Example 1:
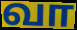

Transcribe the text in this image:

வா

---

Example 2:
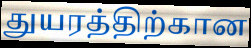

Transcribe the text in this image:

துயரத்திற்கான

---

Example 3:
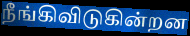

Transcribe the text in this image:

நீங்கிவிடுகின்றன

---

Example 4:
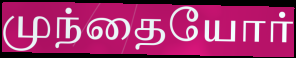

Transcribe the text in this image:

முந்தையோர்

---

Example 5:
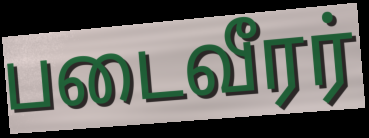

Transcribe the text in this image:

படைவீரர்